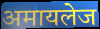
अमायलेज